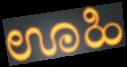
ಊಹಿ